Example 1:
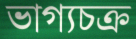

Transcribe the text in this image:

ভাগ্যচক্র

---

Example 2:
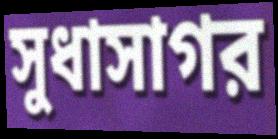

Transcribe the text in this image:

সুধাসাগর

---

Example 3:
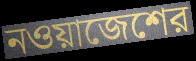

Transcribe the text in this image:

নওয়াজেশের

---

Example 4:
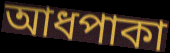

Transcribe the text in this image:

আধপাকা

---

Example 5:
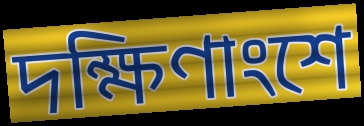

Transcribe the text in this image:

দক্ষিণাংশে